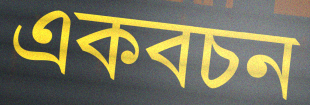
একবচন